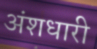
अंशधारी